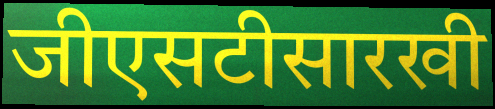
जीएसटीसारखी